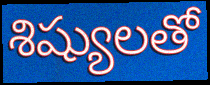
శిష్యులతో